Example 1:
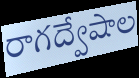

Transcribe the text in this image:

రాగద్వేషాల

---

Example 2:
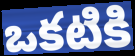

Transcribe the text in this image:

ఒకటికి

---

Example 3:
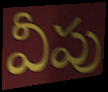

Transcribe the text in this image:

వీపు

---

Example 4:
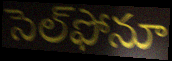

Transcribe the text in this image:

సెల్‌ఫోనూ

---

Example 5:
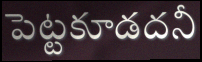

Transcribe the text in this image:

పెట్టకూడదనీ